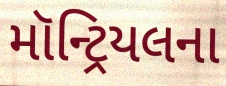
મૉન્ટ્રિયલના